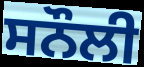
ਸਨੌਲੀ